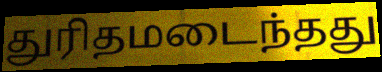
துரிதமடைந்தது